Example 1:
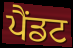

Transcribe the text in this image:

ਪੈਂਡਟ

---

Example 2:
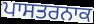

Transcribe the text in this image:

ਪਾਸਤਰਨਾਕ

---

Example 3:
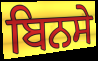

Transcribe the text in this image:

ਬਿਨਸੇ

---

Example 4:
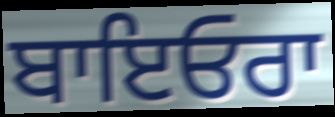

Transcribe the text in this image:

ਬਾਇਓਰਾ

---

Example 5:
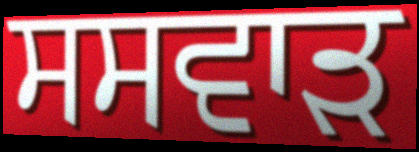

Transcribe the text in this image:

ਸਸਵਾੜ